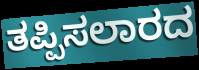
ತಪ್ಪಿಸಲಾರದ